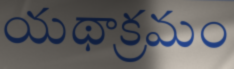
యథాక్రమం